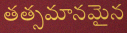
తత్సమానమైన